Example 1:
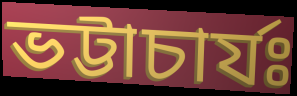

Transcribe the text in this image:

ভট্টাচাৰ্যঃ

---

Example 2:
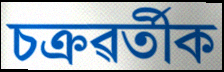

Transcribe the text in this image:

চক্ৰৱৰ্তীক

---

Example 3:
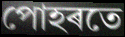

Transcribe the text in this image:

পোহৰতে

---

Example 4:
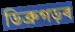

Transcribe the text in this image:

ডিব্ৰুগড়ৰ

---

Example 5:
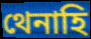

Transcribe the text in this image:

থেনাহি